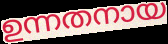
ഉന്നതനായ